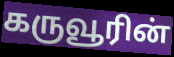
கருவூரின்